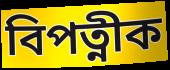
বিপত্নীক